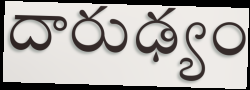
దారుఢ్యం